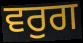
ਵਰੁਗ